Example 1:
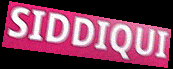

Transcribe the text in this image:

SIDDIQUI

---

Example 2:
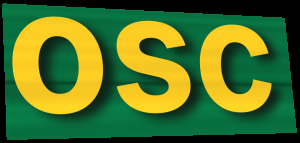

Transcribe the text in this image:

osc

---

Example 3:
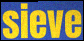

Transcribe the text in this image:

sieve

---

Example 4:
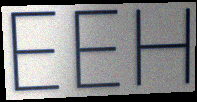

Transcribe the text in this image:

EEH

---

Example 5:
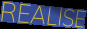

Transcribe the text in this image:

REALISE